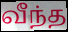
வீந்த